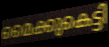
മൈക്കുകെട്ടി